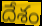
దేశం